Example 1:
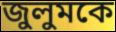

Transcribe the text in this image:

জুলুমকে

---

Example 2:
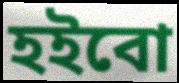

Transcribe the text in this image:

হইবো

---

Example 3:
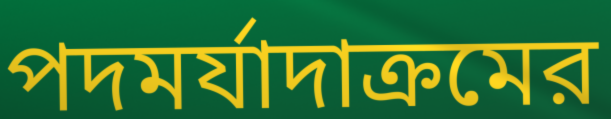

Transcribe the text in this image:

পদমর্যাদাক্রমের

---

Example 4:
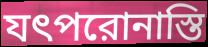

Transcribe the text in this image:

যৎপরোনাস্তি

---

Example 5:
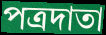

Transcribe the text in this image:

পত্রদাতা